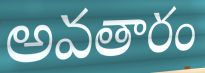
అవతారం